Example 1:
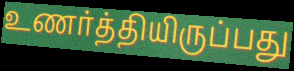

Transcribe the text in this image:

உணர்த்தியிருப்பது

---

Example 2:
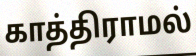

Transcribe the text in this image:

காத்திராமல்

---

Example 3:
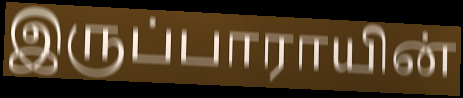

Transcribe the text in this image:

இருப்பாராயின்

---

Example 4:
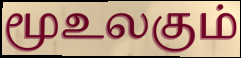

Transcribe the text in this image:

மூஉலகும்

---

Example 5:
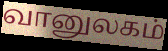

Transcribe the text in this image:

வானுலகம்